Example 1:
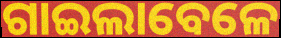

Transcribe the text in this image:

ଗାଇଲାବେଳେ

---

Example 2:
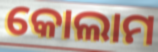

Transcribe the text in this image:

କୋଲାମ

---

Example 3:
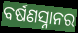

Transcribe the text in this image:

ବର୍ଷଣସ୍ନାନର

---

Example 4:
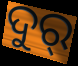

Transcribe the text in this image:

ଦୁର୍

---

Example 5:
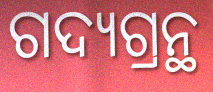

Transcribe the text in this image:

ଗଦ୍ୟଗ୍ରନ୍ଥ